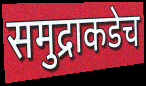
समुद्राकडेच